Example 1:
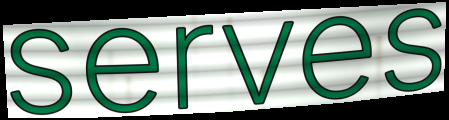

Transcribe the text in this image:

serves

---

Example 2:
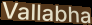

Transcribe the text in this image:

Vallabha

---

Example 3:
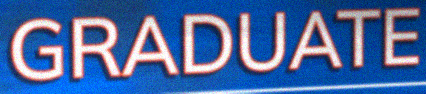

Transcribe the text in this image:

GRADUATE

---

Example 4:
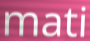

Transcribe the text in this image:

mati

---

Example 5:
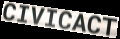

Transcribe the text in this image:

CIVICACT